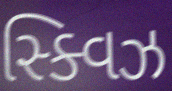
સ્ક્વિઝ